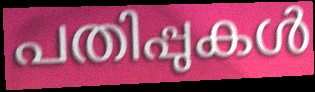
പതിപ്പുകൾ